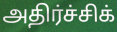
அதிர்ச்சிக்